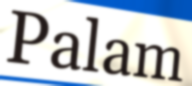
Palam